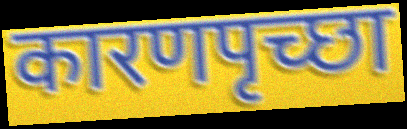
कारणपृच्छा